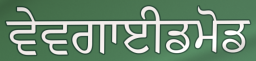
ਵੇਵਗਾਈਡਮੋਡ